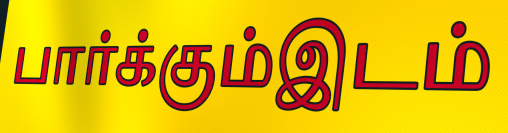
பார்க்கும்இடம்